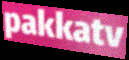
pakkatv